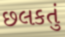
છલકતું